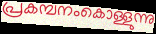
പ്രകമ്പനംകൊള്ളുന്നു